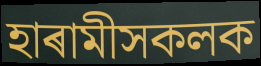
হাৰামীসকলক